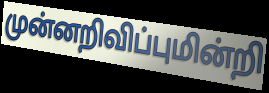
முன்னறிவிப்புமின்றி